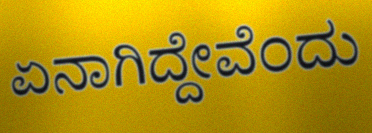
ಏನಾಗಿದ್ದೇವೆಂದು